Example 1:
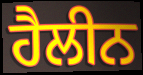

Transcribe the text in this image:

ਹੈਲੀਨ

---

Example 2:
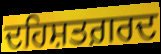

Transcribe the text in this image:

ਦਹਿਸ਼ਤਗ਼ਰਦ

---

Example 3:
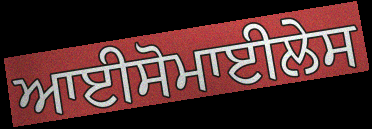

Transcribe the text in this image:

ਆਈਸੋਮਾਈਲੇਸ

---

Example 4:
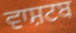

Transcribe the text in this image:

ਵਾਸ਼ਟਬ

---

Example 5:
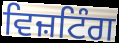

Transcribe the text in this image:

ਵਿਜ਼ਟਿੰਗ